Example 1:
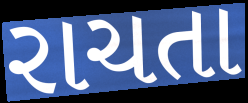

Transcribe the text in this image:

રાચતા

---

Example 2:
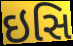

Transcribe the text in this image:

ઇસિ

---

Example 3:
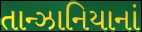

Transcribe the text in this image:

તાન્ઝાનિયાનાં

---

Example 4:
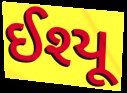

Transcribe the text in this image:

ઈશ્યૂ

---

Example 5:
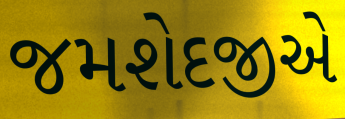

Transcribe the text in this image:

જમશેદજીએ